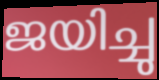
ജയിച്ചു